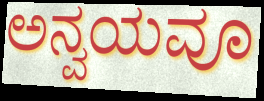
ಅನ್ವಯವೂ